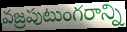
వజ్రపుటుంగరాన్ని